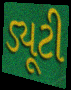
ડ્યૂટી